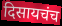
दिसायचंच